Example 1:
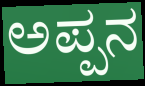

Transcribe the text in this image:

ಅಪ್ಪನ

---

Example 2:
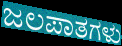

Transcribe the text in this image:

ಜಲಪಾತಗಳು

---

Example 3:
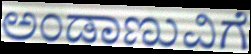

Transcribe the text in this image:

ಅಂಡಾಣುವಿಗೆ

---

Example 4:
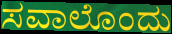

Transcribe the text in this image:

ಸವಾಲೊಂದು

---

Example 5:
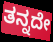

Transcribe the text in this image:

ತನ್ನದೇ